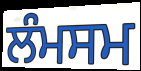
ਲੰਮਸਮ